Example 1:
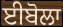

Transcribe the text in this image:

ਈਬੋਲਾ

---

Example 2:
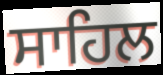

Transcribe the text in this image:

ਸਾਹਿਲ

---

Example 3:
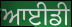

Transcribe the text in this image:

ਆਈਡੀ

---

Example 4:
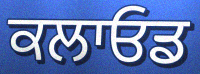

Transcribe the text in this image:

ਕਲਾਓਡ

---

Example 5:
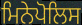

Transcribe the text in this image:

ਮਿਨੇਪੋਲਿਸ